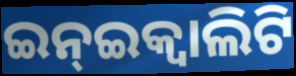
ଇନ୍ଇକ୍ଵାଲିଟି